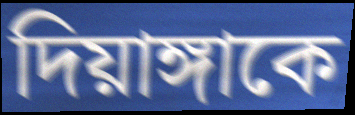
দিয়াঙ্গাকে